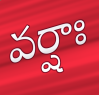
వర్షాః